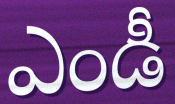
ఎండీ